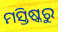
ମସ୍ତିଷ୍କରୁ